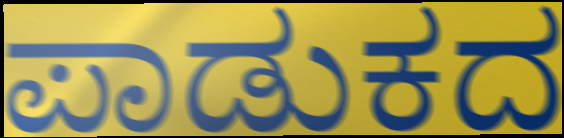
ಪಾಡುಕದ